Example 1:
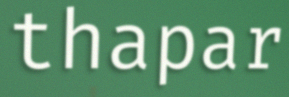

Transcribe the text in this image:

thapar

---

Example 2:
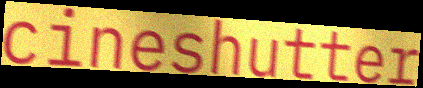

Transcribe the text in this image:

cineshutter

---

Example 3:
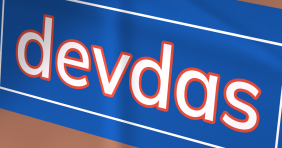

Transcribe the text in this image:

devdas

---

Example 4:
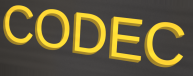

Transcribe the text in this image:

CODEC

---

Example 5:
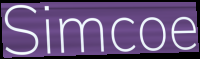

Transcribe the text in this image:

Simcoe